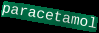
paracetamol